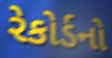
રેકોર્ડનો